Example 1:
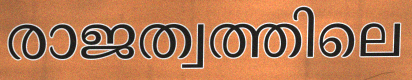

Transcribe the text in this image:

രാജത്വത്തിലെ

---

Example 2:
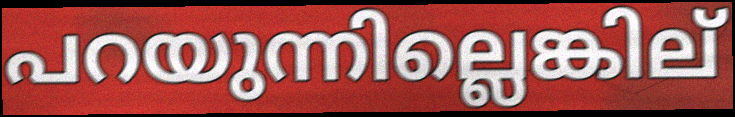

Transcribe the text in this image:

പറയുന്നില്ലെങ്കില്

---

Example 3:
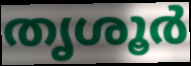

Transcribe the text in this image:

തൃശൂർ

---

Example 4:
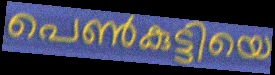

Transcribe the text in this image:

പെൺകുട്ടിയെ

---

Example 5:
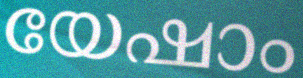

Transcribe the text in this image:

യേഷാം